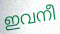
ഇവനീ